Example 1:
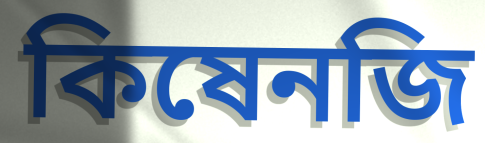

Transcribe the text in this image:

কিষেনজি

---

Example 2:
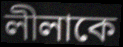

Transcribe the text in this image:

লীলাকে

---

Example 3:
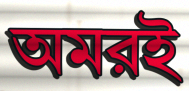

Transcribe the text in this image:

অমরই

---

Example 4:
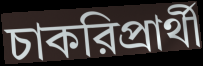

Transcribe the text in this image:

চাকরিপ্রার্থী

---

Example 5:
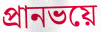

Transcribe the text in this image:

প্রানভয়ে